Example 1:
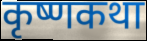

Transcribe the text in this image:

कृष्णकथा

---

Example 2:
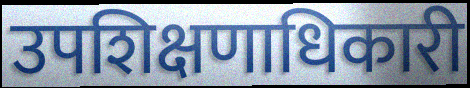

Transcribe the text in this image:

उपशिक्षणाधिकारी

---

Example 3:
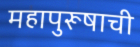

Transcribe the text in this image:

महापुरूषाची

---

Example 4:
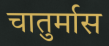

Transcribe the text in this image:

चातुर्मास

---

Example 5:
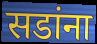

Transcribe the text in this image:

सडांना